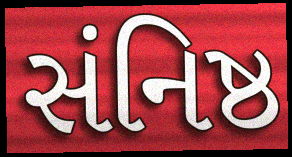
સંનિષ્ઠ